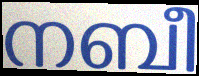
നബീ